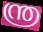
ന്ത്ര